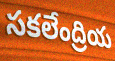
సకలేంద్రియ